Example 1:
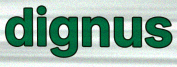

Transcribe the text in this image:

dignus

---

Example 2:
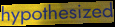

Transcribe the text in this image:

hypothesized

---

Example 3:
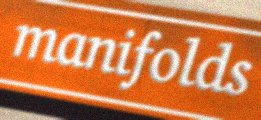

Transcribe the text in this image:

manifolds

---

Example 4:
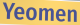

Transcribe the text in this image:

Yeomen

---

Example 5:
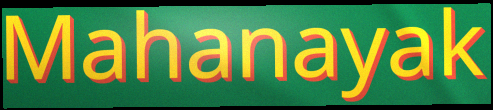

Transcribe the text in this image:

Mahanayak